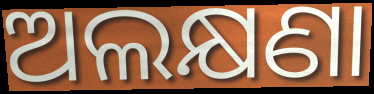
ଅଲକ୍ଷଣା